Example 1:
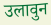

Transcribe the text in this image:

उलावुन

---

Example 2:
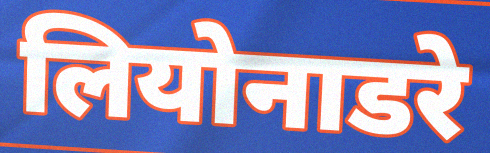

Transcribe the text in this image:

लियोनाडरे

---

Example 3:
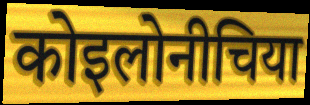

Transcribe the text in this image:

कोइलोनीचिया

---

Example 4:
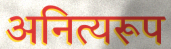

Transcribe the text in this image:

अनित्यरूप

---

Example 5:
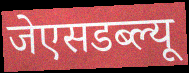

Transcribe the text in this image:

जेएसडब्ल्यू